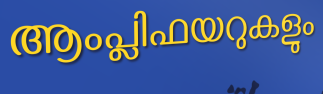
ആംപ്ലിഫയറുകളും